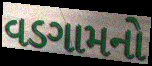
વડગામનો